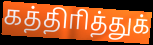
கத்திரித்துக்